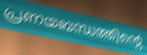
പ്രണയബന്ധത്തിന്റെ